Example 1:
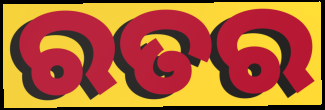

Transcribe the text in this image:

ରତର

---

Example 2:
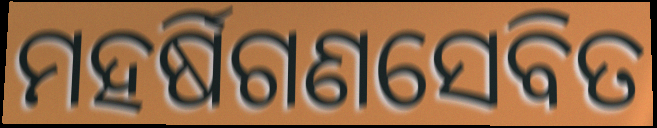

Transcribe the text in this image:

ମହର୍ଷିଗଣସେବିତ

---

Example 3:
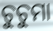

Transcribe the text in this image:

ଚୁଚୁମା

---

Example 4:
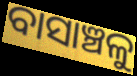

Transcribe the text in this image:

ବାସାଞ୍ଚଳୁ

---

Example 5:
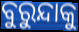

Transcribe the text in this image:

ବୁରୁନ୍ଦାକୁ